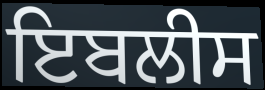
ਇਬਲੀਸ